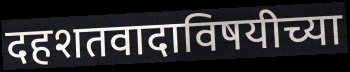
दहशतवादाविषयीच्या